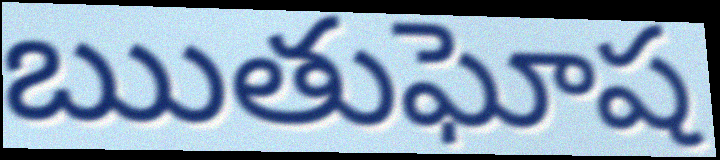
ఋతుఘోష